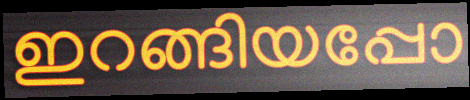
ഇറങ്ങിയപ്പോ